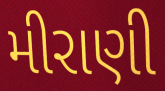
મીરાણી